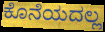
ಕೊನೆಯದಲ್ಲ